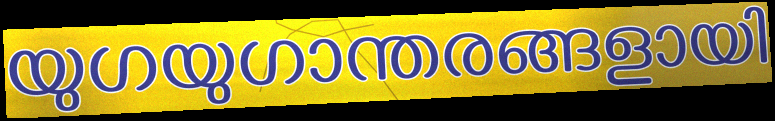
യുഗയുഗാന്തരങ്ങളായി